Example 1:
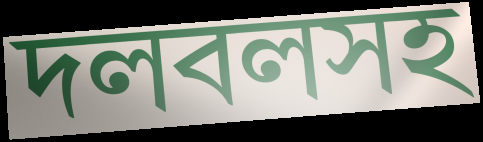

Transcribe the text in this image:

দলবলসহ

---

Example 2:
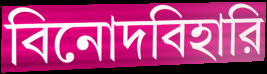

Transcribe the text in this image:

বিনোদবিহারি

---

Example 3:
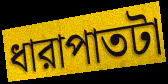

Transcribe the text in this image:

ধারাপাতটা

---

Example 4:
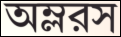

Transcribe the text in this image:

অম্লরস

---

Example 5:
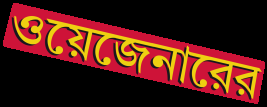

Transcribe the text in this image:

ওয়েজেনারের